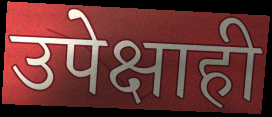
उपेक्षाही